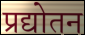
प्रद्योतन